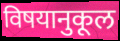
विषयानुकूल